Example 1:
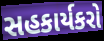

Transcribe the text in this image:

સહકાર્યકરો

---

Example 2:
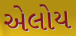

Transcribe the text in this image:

એલોય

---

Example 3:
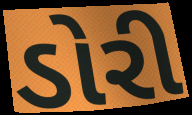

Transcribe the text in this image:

ડોરી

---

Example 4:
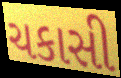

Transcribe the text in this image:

ચકાસી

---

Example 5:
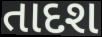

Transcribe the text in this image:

તાદશ